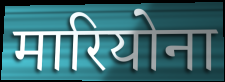
मारियोना